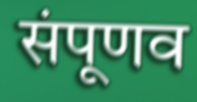
संपूणव